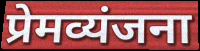
प्रेमव्यंजना